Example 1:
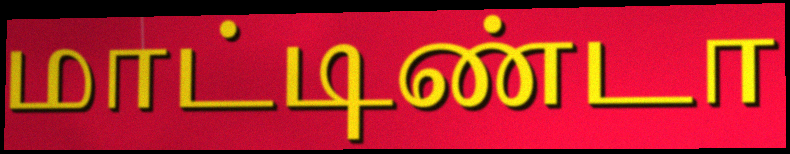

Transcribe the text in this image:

மாட்டிண்டா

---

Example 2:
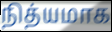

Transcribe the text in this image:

நித்யமாக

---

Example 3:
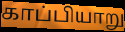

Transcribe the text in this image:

காப்பியாறு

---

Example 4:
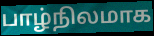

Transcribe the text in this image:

பாழ்நிலமாக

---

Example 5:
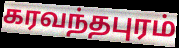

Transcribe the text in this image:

கரவந்தபுரம்